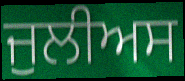
ਜੁਲੀਅਸ